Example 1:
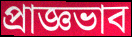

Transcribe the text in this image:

প্রাজ্ঞভাব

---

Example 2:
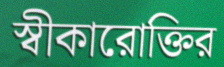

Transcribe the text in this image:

স্বীকারোক্তির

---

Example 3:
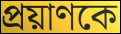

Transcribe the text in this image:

প্রয়াণকে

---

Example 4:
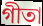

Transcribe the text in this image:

গীতা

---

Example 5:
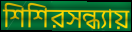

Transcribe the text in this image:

শিশিরসন্ধ্যায়